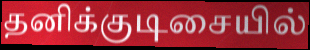
தனிக்குடிசையில்